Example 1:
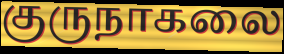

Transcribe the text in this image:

குருநாகலை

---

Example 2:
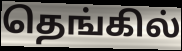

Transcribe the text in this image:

தெங்கில்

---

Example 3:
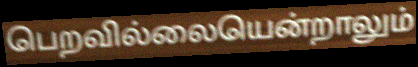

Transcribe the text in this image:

பெறவில்லையென்றாலும்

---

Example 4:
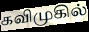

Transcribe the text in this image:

கவிமுகில்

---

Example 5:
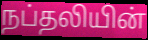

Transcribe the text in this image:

நப்தலியின்